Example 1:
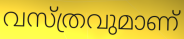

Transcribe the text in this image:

വസ്ത്രവുമാണ്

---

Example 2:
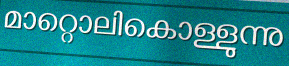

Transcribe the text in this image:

മാറ്റൊലികൊള്ളുന്നു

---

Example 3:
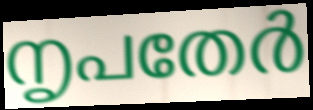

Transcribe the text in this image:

നൃപതേർ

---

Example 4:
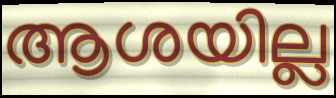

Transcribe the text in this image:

ആശയില്ല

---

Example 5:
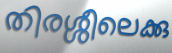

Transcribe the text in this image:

തിരശ്ശീലെക്കു